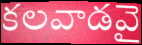
కలవాడవై